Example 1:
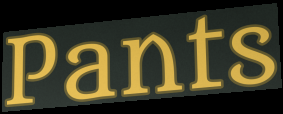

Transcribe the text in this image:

Pants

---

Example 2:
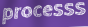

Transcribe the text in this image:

processs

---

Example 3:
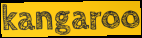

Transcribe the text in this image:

kangaroo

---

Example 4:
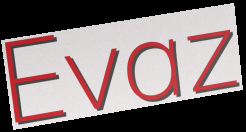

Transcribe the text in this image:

Evaz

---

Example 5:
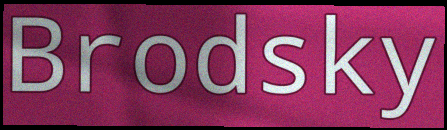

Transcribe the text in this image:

Brodsky